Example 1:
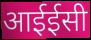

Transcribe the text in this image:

आईईसी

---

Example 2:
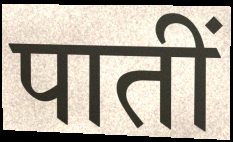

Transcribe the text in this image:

पातीं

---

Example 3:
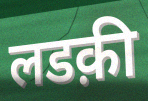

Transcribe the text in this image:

लडक़ी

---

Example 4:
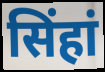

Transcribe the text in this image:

सिंहां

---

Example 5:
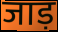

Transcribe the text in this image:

जाड़